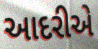
આદરીએ